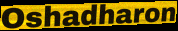
Oshadharon